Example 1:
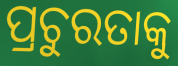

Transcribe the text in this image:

ପ୍ରଚୁରତାକୁ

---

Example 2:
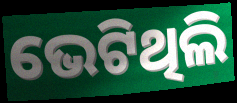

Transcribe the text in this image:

ଭେଟିଥିଲି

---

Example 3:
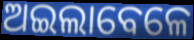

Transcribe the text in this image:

ଅଇଲାବେଳେ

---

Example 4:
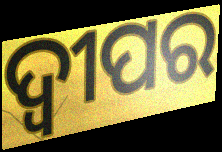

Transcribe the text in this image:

ଦ୍ଵୀପର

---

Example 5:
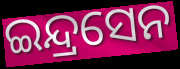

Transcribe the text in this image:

ଇନ୍ଦ୍ରସେନ